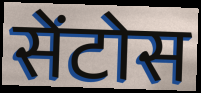
सेंटोस